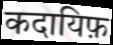
कदायिफ़